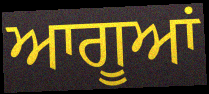
ਆਗੂਆਂ